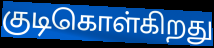
குடிகொள்கிறது